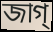
জাগ্